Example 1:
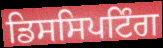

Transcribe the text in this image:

ਡਿਸਸਿਪਟਿੰਗ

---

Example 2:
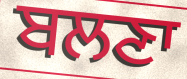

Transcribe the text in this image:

ਬਲਣਾ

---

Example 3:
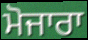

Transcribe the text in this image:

ਮੋਜਾਰਾ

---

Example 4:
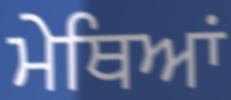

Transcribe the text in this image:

ਮੇਥਿਆਂ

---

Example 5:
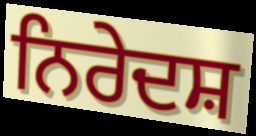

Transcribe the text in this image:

ਨਿਰੇਦਸ਼